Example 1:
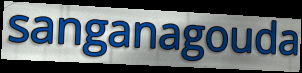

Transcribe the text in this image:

sanganagouda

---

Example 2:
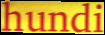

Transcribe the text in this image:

hundi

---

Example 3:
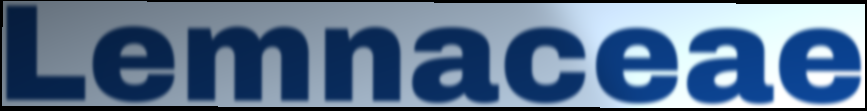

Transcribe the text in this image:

Lemnaceae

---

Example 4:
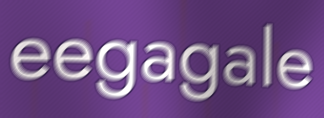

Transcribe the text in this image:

eegagale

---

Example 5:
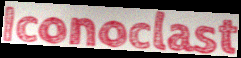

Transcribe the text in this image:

Iconoclast